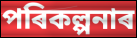
পৰিকল্পনাৰ